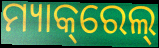
ମ୍ୟାକ୍‌ରେଲ୍